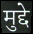
मुद्दे